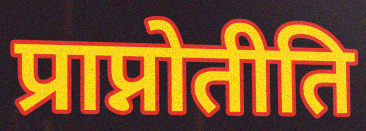
प्राप्नोतीति